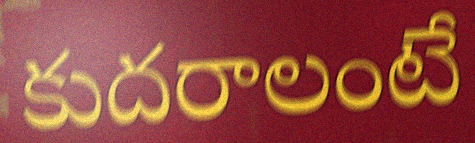
కుదరాలంటే